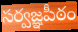
సర్వజ్ఞపీఠం